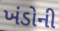
ખંડોની